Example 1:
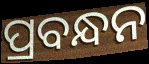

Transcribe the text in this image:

ପ୍ରବନ୍ଧନ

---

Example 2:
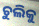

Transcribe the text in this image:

ଚୁଲିକୁ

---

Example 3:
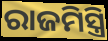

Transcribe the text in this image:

ରାଜମିସ୍ତ୍ରି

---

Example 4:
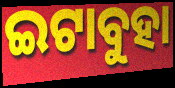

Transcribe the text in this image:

ଇଟାବୁହା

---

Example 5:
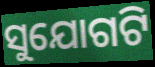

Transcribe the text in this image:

ସୁଯୋଗଟି